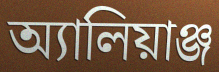
অ্যালিয়াঞ্জ